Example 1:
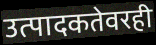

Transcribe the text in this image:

उत्पादकतेवरही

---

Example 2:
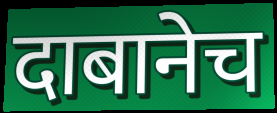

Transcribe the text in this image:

दाबानेच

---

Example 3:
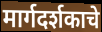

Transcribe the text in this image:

मार्गदर्शकाचे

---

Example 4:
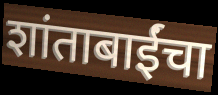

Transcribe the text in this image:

शांताबाईंचा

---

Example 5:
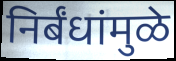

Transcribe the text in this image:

निर्बंधांमुळे